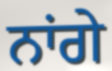
ਨਾਂਗੇ